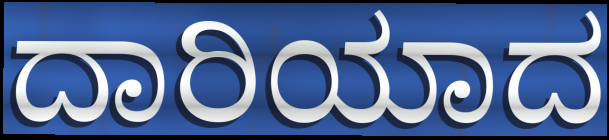
ದಾರಿಯಾದ